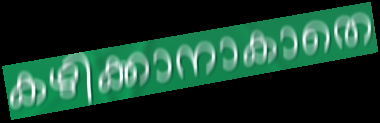
കഴിക്കാനാകാതെ